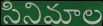
సినిమాల